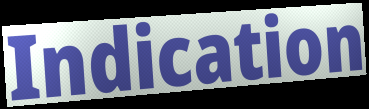
Indication